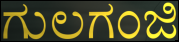
ಗುಲಗಂಜಿ